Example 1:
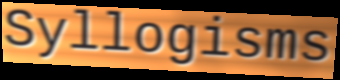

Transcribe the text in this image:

Syllogisms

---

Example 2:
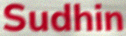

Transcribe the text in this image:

Sudhin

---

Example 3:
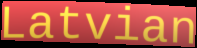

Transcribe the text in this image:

Latvian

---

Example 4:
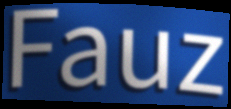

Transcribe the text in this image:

Fauz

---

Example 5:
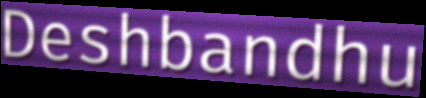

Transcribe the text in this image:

Deshbandhu